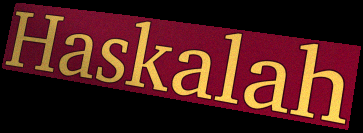
Haskalah